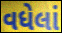
વધેલાં